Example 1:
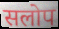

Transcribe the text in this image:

सलोप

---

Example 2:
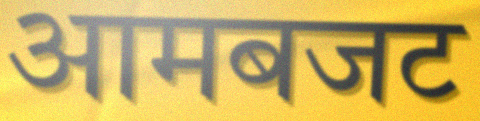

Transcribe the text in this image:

आमबजट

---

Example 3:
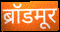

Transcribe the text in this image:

ब्रॉडमूर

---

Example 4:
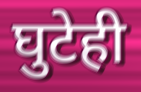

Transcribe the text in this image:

घुटेही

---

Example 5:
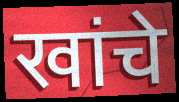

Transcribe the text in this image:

खांचे